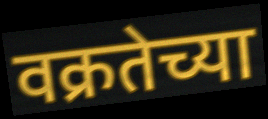
वक्रतेच्या